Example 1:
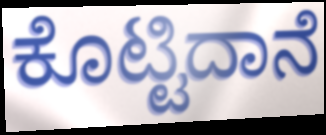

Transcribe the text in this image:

ಕೊಟ್ಟಿದಾನೆ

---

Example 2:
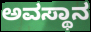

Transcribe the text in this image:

ಅವಸ್ಥಾನ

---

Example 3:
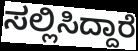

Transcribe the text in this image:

ಸಲ್ಲಿಸಿದ್ದಾರೆ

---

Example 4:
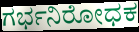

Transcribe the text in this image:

ಗರ್ಭನಿರೋಧಕ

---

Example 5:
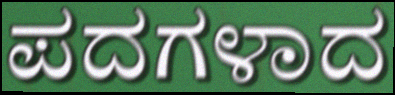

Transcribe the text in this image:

ಪದಗಳಾದ